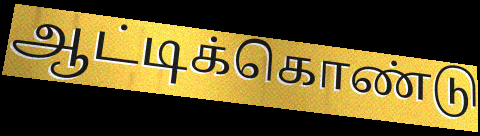
ஆட்டிக்கொண்டு